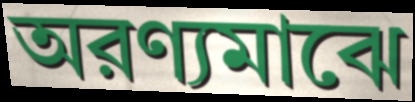
অরণ্যমাঝে